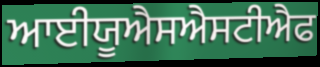
ਆਈਯੂਐਸਐਸਟੀਐਫ